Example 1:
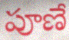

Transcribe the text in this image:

పూణే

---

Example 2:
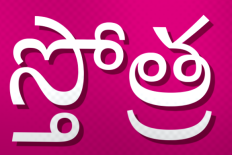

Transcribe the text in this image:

స్తోత్ర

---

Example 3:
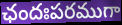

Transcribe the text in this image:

ఛందఃపరముగా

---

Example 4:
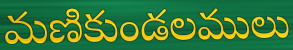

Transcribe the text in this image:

మణికుండలములు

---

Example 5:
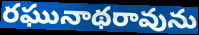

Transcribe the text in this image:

రఘునాథరావును